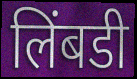
लिंबडी